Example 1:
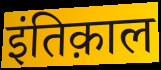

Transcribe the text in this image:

इंतिक़ाल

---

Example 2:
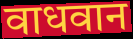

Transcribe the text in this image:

वाधवान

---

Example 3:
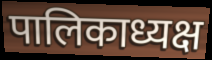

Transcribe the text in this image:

पालिकाध्यक्ष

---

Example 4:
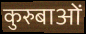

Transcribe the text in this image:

कुरुबाओं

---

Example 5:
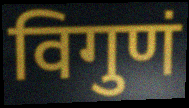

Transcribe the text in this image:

विगुणं